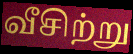
வீசிற்று